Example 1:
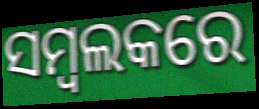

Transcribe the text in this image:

ସମ୍ବଲକରେ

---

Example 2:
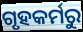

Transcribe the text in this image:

ଗୃହକର୍ମରୁ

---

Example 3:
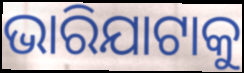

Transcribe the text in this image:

ଭାରିଯାଟାକୁ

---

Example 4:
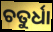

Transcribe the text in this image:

ଚତୁର୍ଧା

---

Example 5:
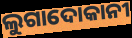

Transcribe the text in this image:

ଲୁଗାଦୋକାନୀ